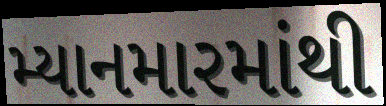
મ્યાનમારમાંથી